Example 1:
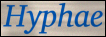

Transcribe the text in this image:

Hyphae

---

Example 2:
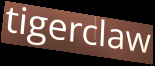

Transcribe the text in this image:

tigerclaw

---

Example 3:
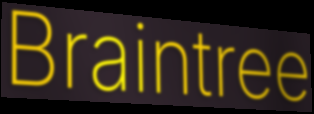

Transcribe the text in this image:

Braintree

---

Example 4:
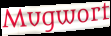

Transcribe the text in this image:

Mugwort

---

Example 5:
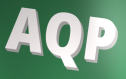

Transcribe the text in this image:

AQP